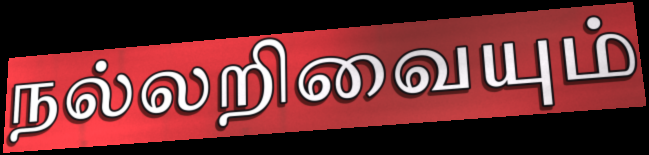
நல்லறிவையும்